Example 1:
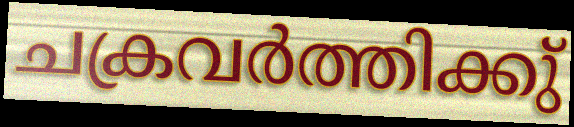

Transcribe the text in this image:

ചക്രവർത്തിക്കു്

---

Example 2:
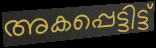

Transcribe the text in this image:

അകപ്പെട്ടിട്ട്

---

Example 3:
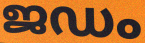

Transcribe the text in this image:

ജഡം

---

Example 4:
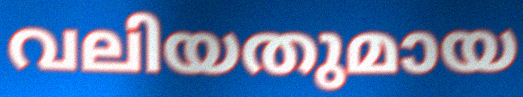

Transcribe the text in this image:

വലിയതുമായ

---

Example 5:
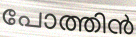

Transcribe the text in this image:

പോത്തിൻ